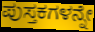
ಪುಸ್ತಕಗಳನ್ನೇ